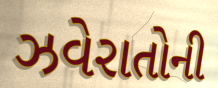
ઝવેરાતોની